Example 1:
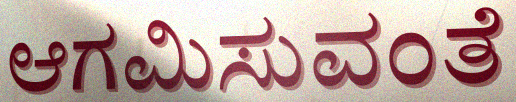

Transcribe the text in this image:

ಆಗಮಿಸುವಂತೆ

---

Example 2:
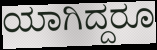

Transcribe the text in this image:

ಯಾಗಿದ್ದರೂ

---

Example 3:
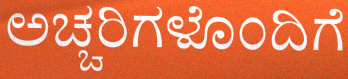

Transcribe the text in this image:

ಅಚ್ಚರಿಗಳೊಂದಿಗೆ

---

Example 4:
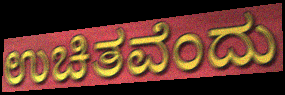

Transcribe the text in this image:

ಉಚಿತವೆಂದು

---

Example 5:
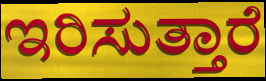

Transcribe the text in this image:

ಇರಿಸುತ್ತಾರೆ